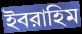
ইবরাহিম